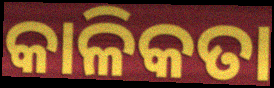
କାଳିକତା